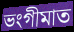
ভংগীমাত